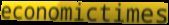
economictimes